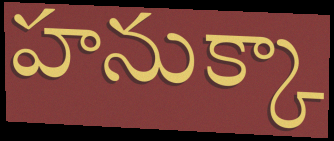
హనుక్కా